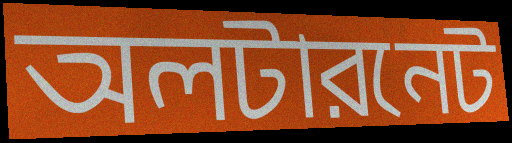
অলটারনেট